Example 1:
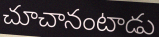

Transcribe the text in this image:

చూచానంటాడు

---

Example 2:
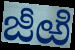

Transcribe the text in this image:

జీఱి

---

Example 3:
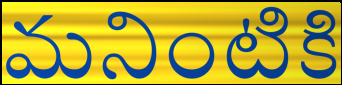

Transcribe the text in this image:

మనింటికి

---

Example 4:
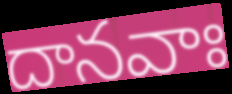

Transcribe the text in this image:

దానవాః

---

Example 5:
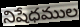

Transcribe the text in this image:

నిషేధముల